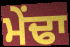
ਮੇਂਢਾ